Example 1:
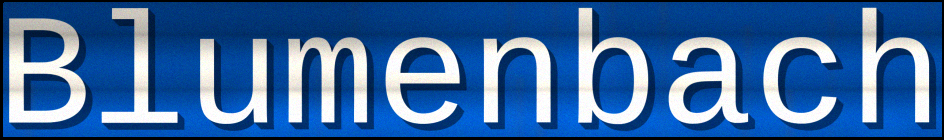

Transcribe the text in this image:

Blumenbach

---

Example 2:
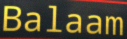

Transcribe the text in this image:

Balaam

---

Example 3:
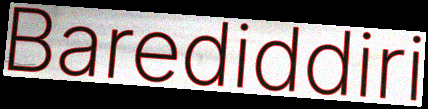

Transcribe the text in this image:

Barediddiri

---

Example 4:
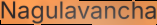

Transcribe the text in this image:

Nagulavancha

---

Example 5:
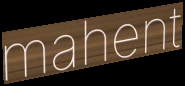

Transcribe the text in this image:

mahent